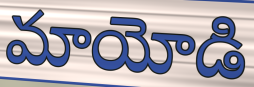
మాయోడి